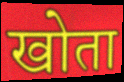
खोता